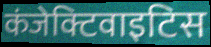
कंजेक्टिवाइटिस